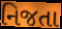
નિજતા